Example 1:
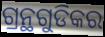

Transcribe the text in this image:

ଗ୍ରନ୍ଥଗୁଡିକର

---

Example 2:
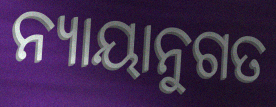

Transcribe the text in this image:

ନ୍ୟାୟାନୁଗତ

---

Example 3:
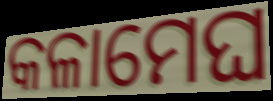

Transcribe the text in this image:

କଳାମେଘ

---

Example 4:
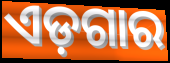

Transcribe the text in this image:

ଏଡ଼ଗାର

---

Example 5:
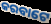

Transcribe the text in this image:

କରବାଟେ